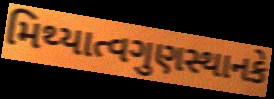
મિથ્યાત્વગુણસ્થાનકે